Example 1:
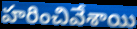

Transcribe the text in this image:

హరించివేశాయి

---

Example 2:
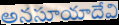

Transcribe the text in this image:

అనసూయాదేవి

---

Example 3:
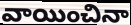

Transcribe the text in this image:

వాయించినా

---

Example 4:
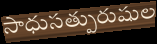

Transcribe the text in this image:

సాధుసత్పురుషుల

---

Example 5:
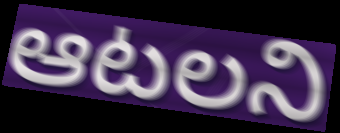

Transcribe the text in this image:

ఆటలని